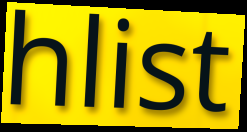
hlist